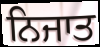
ਨਿਜਾਤ